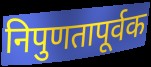
निपुणतापूर्वक